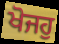
ਖੋਜਹੁ